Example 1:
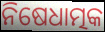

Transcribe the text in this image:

ନିଷେଧାତ୍ମକ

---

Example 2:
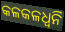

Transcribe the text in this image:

କଳକଳଧ୍ଵନି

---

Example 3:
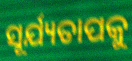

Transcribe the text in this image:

ସୂର୍ଯ୍ୟତାପକୁ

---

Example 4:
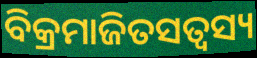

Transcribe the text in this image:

ବିକ୍ରମାଜିତସତ୍ଵସ୍ୟ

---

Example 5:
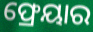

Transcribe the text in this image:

ଫ୍ରେୟାର